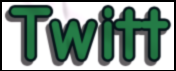
Twitt